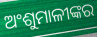
ଅଂଶୁମାଳୀଙ୍କର